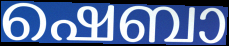
ഷെബാ